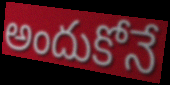
అందుకోనే